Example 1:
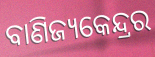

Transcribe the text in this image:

ବାଣିଜ୍ୟକେନ୍ଦ୍ରର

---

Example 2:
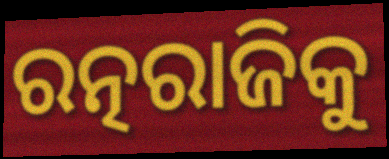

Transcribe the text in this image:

ରତ୍ନରାଜିକୁ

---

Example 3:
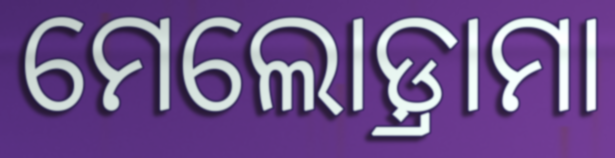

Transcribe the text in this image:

ମେଲୋଡ଼୍ରାମା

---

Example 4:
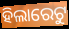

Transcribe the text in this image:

ହିଲାରେଟୁ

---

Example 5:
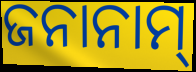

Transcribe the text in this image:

ଜନାନାମ୍